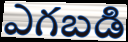
ఎగబడి